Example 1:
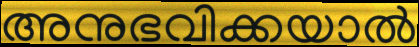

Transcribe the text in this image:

അനുഭവിക്കയാൽ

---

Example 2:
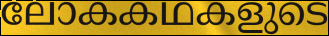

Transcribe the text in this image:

ലോകകഥകളുടെ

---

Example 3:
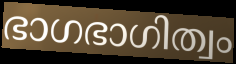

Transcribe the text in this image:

ഭാഗഭാഗിത്വം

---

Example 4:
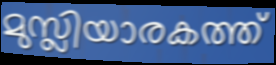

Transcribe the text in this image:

മുസ്ലിയാരകത്ത്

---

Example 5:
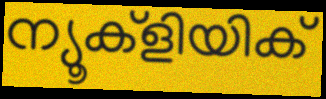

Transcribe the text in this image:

ന്യൂക്ളിയിക്